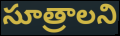
సూత్రాలని